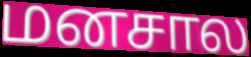
மனசால